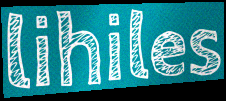
lihiles